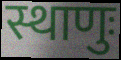
स्थाणुः